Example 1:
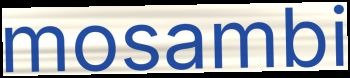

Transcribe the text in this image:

mosambi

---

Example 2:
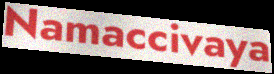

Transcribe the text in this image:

Namaccivaya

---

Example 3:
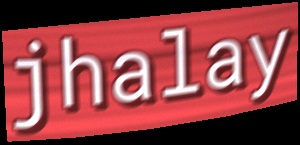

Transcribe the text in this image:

jhalay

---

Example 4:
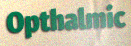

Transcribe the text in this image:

Opthalmic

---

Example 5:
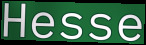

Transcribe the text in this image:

Hesse